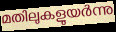
മതിലുകളുയർന്നു